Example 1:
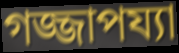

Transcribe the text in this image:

গজ্জাপয্যা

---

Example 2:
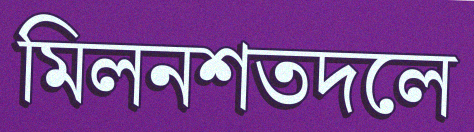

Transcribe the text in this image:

মিলনশতদলে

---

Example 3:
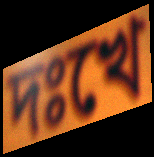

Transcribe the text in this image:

দঃখে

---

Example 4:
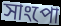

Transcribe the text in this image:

সাংপো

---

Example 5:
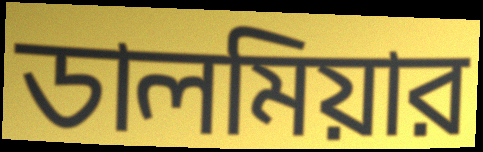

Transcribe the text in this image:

ডালমিয়ার